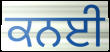
ਕਨਈ